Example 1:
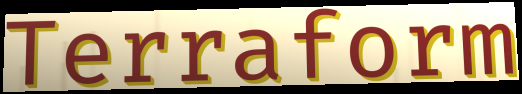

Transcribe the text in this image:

Terraform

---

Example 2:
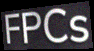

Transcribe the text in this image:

FPCs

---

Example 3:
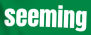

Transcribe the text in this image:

seeming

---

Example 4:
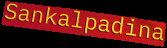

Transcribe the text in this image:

Sankalpadina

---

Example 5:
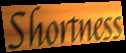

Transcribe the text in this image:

Shortness